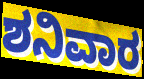
ಶನಿವಾರ